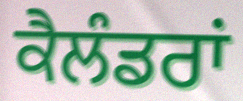
ਕੈਲੰਡਰਾਂ